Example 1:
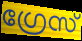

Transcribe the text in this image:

ഗ്രേസ്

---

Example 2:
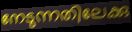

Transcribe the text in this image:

നേടുന്നതിലേക്കു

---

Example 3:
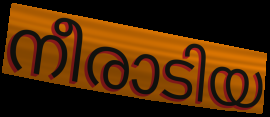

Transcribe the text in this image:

നീരാടിയ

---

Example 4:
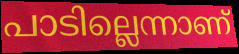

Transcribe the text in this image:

പാടില്ലെന്നാണ്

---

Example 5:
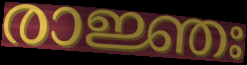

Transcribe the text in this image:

രാജ്ഞഃ